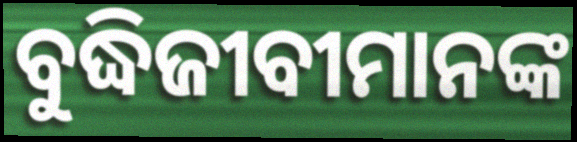
ବୁଦ୍ଧିଜୀବୀମାନଙ୍କ